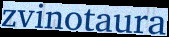
zvinotaura